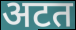
अटत